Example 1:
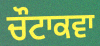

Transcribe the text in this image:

ਚੌਟਾਕਵਾ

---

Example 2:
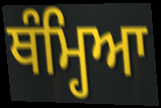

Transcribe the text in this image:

ਥੰਮ੍ਹਿਆ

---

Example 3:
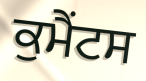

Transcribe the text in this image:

ਕੁਮੈਂਟਸ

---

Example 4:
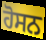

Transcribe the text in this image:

ਹੋਸਨ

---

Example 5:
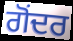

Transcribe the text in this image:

ਗੋਂਦਰ